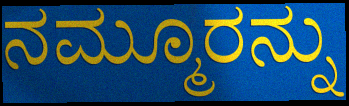
ನಮ್ಮೂರನ್ನು